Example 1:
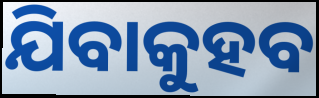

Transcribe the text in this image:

ଯିବାକୁହବ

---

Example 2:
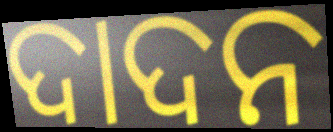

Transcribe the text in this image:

ଦାଦନ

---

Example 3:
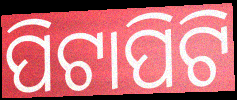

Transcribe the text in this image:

ପିଟାପିଟି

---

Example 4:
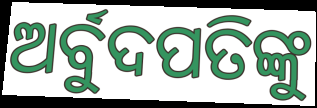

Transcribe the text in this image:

ଅର୍ବୁଦପତିଙ୍କୁ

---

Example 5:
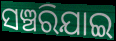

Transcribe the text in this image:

ସଞ୍ଚରିଯାଇ